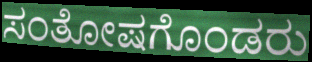
ಸಂತೋಷಗೊಂಡರು